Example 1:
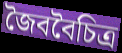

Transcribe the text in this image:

জৈববৈচিত্র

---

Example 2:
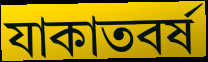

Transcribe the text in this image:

যাকাতবর্ষ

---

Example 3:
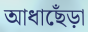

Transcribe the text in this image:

আধাছেঁড়া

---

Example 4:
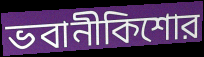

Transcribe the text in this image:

ভবানীকিশোর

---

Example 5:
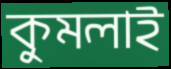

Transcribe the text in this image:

কুমলাই